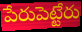
పేరుపెట్టేరు